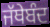
ਜੱਥੇਬੰਦ